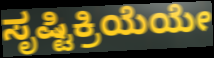
ಸೃಷ್ಟಿಕ್ರಿಯೆಯೇ